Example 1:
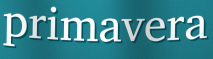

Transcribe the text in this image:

primavera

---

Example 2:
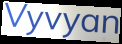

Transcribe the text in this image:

Vyvyan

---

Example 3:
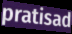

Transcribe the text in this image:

pratisad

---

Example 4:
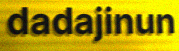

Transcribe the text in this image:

dadajinun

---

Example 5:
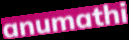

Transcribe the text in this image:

anumathi